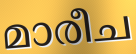
മാരീച